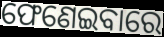
ଫେଣେଇବାରେ